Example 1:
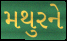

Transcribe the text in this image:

મથુરને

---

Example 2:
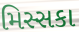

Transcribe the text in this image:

મિસ્સકા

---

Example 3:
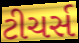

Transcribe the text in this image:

ટીચર્સ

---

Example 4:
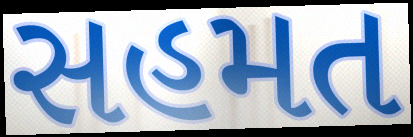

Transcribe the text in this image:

સહમત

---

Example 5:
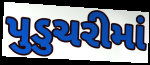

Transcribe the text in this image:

પુડુચરીમાં